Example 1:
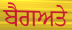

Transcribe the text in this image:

ਬੈਗਅਤੇ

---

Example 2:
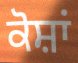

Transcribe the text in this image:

ਕੋਸ਼ਾਂ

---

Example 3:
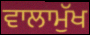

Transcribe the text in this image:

ਵਾਲਾਮੁੱਖ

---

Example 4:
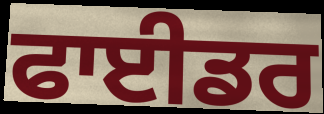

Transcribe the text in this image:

ਫਾਈਡਰ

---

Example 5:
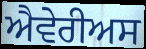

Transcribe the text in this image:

ਐਵੇਰੀਅਸ